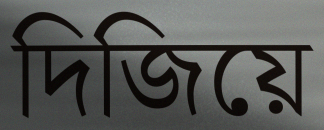
দিজিয়ে